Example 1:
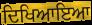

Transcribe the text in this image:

ਦਿਖਿਆਇਆ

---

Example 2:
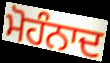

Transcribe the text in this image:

ਮੋਹੰਨਾਦ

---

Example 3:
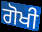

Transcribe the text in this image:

ਗੋਖੀ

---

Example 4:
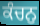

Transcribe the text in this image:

ਕੰਚਨੁ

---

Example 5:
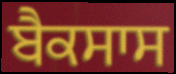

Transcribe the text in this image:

ਬੈਕਸਾਸ